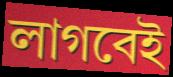
লাগবেই